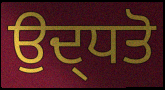
ਉਦ੍ਧਤੋ